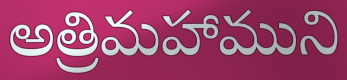
అత్రిమహాముని